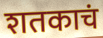
शतकाचं